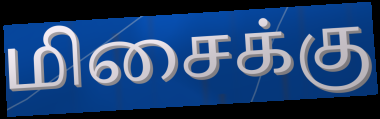
மிசைக்கு